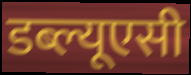
डब्ल्यूएसी